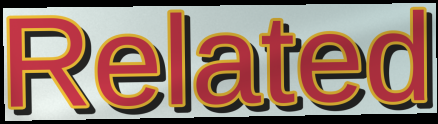
Related